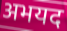
अभयद